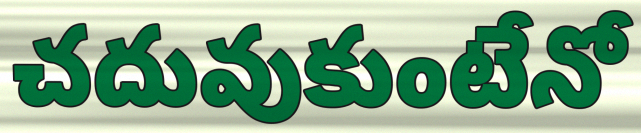
చదువుకుంటేనో